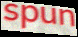
spun